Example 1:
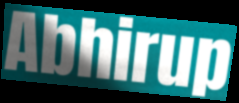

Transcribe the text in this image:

Abhirup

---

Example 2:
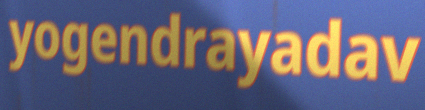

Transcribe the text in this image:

yogendrayadav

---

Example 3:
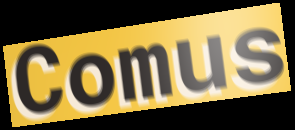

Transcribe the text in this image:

Comus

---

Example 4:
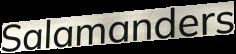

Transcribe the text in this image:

Salamanders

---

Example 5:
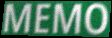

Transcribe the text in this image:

MEMO